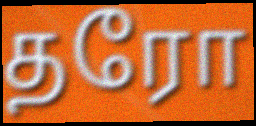
தரோ